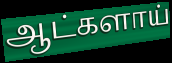
ஆட்களாய்